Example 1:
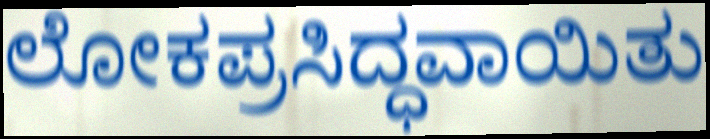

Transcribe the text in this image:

ಲೋಕಪ್ರಸಿದ್ಧವಾಯಿತು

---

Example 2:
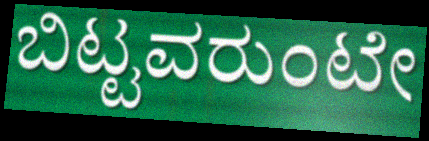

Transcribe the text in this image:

ಬಿಟ್ಟವರುಂಟೇ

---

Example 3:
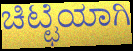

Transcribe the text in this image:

ಚಿಟ್ಟೆಯಾಗಿ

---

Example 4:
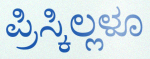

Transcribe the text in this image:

ಪ್ರಿಸ್ಕಿಲ್ಲಳೂ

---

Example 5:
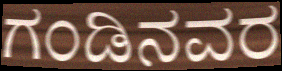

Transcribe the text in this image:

ಗಂಡಿನವರ